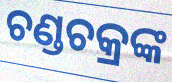
ଚଣ୍ଡଚକ୍ରଙ୍କ